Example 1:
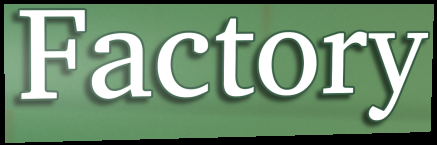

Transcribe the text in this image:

Factory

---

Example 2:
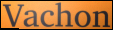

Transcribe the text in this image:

Vachon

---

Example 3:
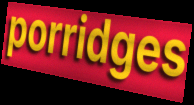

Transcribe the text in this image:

porridges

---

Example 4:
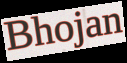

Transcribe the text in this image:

Bhojan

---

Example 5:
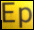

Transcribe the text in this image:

Ep